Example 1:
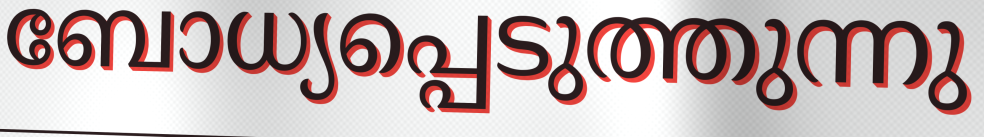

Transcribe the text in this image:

ബോധ്യപ്പെടുത്തുന്നു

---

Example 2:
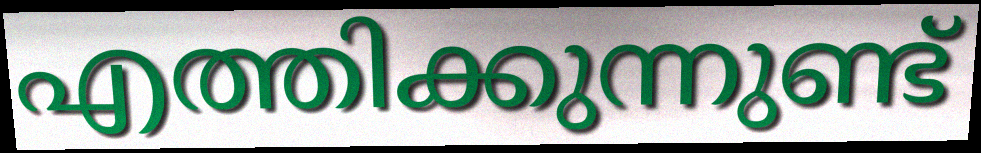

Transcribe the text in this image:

എത്തിക്കുന്നുണ്ട്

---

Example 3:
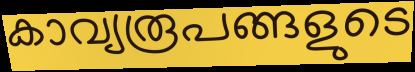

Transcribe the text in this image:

കാവ്യരൂപങ്ങളുടെ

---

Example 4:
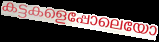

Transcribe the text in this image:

കട്ടകളെപ്പോലെയോ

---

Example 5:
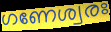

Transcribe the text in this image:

ഗണേശ്വരഃ